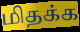
மிதக்க